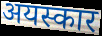
अयस्कार